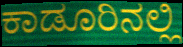
ಕಾಡೂರಿನಲ್ಲಿ